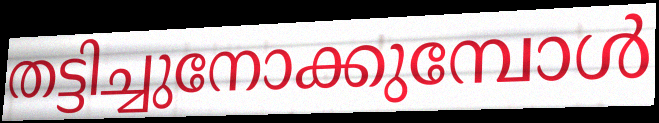
തട്ടിച്ചുനോക്കുമ്പോൾ